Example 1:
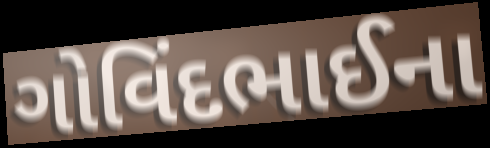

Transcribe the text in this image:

ગોવિંદભાઈના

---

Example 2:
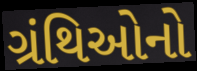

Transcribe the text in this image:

ગ્રંથિઓનો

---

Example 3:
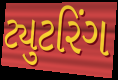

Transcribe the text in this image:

ટ્યુટરિંગ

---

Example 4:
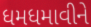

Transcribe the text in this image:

ધમધમાવીને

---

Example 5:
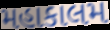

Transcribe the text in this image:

મહાકાલમ